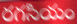
రగసియం